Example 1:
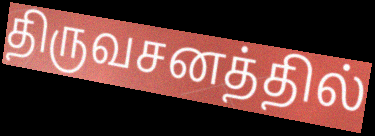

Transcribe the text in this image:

திருவசனத்தில்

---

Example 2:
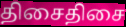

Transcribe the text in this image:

திசைதிசை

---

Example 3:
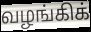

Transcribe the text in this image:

வழங்கிக்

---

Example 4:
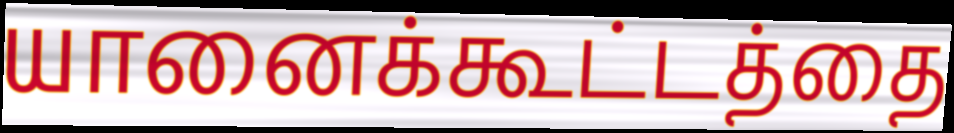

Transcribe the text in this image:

யானைக்கூட்டத்தை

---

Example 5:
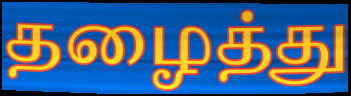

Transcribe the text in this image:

தழைத்து